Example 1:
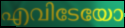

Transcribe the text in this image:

എവിടേയോ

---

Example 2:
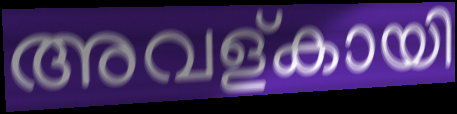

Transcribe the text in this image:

അവള്കായി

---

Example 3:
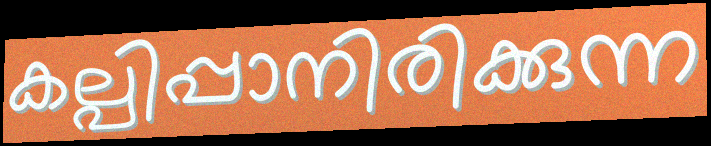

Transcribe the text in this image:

കല്പിപ്പാനിരിക്കുന്ന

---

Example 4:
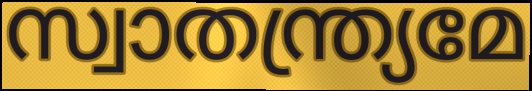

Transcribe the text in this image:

സ്വാതന്ത്ര്യമേ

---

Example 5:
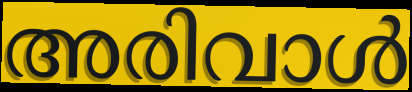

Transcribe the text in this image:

അരിവാൾ